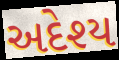
અદેશ્ય